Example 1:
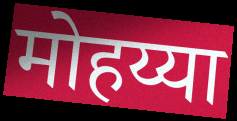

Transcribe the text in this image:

मोहय्या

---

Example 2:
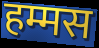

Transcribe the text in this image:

हम्मस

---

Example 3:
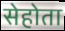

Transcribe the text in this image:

सेहोता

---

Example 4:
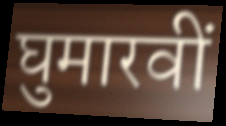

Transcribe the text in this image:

घुमारवीं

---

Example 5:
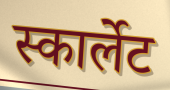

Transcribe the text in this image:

स्कार्लेट